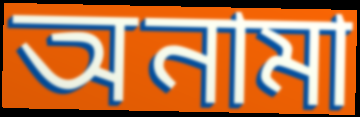
অনামা